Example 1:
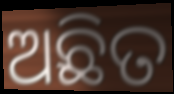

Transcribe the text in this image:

ଅଛିତ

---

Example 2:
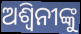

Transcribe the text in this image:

ଅଶ୍ୱିନୀଙ୍କୁ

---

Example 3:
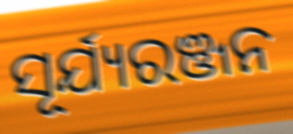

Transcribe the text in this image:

ସୂର୍ଯ୍ୟରଞ୍ଜନ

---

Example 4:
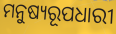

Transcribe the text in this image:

ମନୁଷ୍ୟରୂପଧାରୀ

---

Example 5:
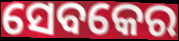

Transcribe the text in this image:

ସେବକେର